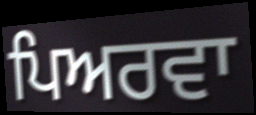
ਪਿਅਰਵਾ